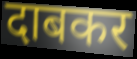
दाबकर